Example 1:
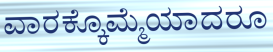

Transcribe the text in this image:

ವಾರಕ್ಕೊಮ್ಮೆಯಾದರೂ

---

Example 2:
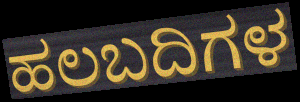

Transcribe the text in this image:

ಹಲಬದಿಗಳ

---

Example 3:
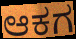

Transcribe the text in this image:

ಆಕಗ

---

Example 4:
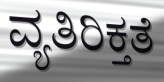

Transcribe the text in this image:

ವ್ಯತಿರಿಕ್ತತೆ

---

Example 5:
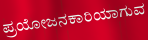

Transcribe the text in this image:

ಪ್ರಯೋಜನಕಾರಿಯಾಗುವ